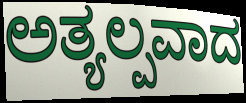
ಅತ್ಯಲ್ಪವಾದ